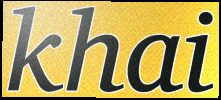
khai